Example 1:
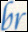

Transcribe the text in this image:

br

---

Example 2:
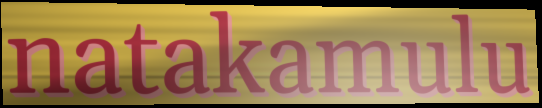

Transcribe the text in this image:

natakamulu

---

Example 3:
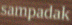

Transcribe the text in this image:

sampadak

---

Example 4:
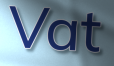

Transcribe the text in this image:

Vat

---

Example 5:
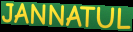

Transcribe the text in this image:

JANNATUL